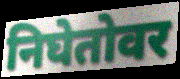
निघेतोवर